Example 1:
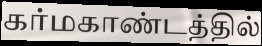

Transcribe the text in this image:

கர்மகாண்டத்தில்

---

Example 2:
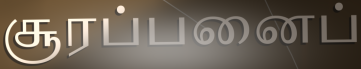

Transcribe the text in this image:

சூரப்பனைப்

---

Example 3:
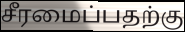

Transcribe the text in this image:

சீரமைப்பதற்கு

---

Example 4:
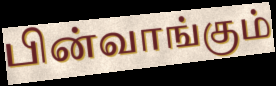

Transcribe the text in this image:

பின்வாங்கும்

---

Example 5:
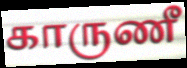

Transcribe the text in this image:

காருணீ